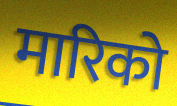
मारिको